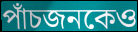
পাঁচজনকেও